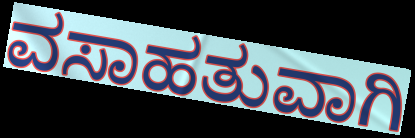
ವಸಾಹತುವಾಗಿ